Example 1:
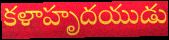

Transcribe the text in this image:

కళాహృదయుడు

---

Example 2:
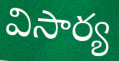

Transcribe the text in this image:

విసార్య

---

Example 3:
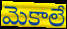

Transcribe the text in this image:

మెకాలే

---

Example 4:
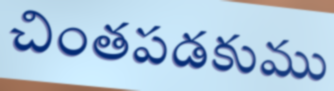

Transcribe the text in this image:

చింతపడకుము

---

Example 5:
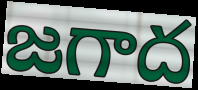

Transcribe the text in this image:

జగాద